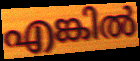
എങ്കിൽ